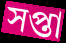
সপ্তা